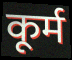
कूर्म